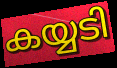
കയ്യടി